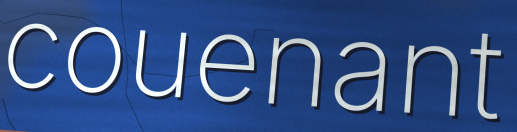
couenant